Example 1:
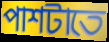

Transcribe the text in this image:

পাশটাতে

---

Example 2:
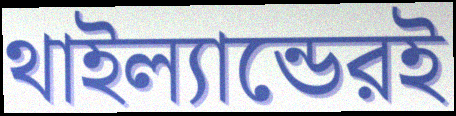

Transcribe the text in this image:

থাইল্যান্ডেরই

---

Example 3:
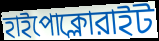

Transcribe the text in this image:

হাইপোক্লোরাইট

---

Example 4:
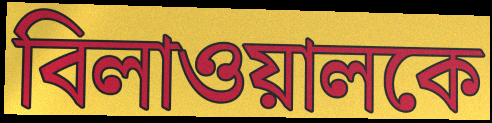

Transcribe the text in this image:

বিলাওয়ালকে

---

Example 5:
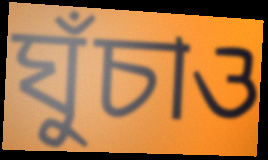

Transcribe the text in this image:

ঘুঁচাও